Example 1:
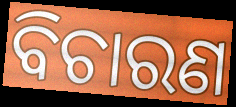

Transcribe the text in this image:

ବିଚାରଣ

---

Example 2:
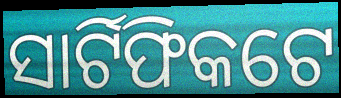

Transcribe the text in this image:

ସାର୍ଟିଫିକଟେ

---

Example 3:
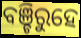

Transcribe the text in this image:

ବଞ୍ଚିରୁହେ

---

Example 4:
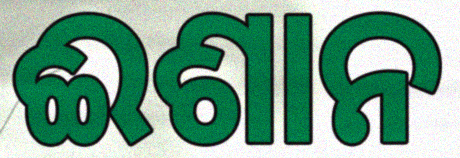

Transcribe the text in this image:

ଈଶାନ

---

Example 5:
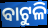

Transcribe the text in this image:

ବାଟୁଳି